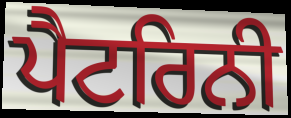
ਪੈਟਰਿਨੀ